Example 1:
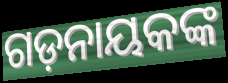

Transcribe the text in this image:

ଗଡ଼ନାୟକଙ୍କ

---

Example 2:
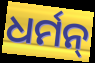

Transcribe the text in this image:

ଧର୍ମନ୍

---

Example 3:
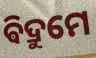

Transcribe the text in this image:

ଵିଦ୍ରୁମେ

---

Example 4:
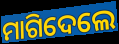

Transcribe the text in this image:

ମାଗିଦେଲେ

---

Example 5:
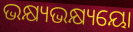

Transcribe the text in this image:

ଭକ୍ଷ୍ୟଭକ୍ଷ୍ୟୟୋ